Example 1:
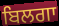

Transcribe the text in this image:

ਬਿਲਗਾ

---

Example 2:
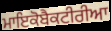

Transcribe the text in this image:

ਮਾਇਕੋਬੈਕਟੀਰੀਆ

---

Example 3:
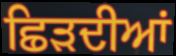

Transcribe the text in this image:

ਛਿੜਦੀਆਂ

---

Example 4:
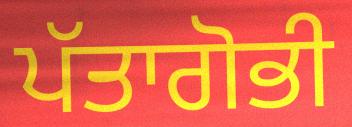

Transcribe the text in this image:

ਪੱਤਾਗੋਭੀ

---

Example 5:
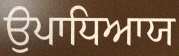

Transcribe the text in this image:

ਉਪਾਧਿਆਯ